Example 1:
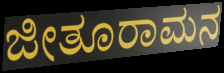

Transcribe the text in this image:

ಜೀತೂರಾಮನ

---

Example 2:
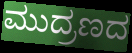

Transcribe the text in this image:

ಮುದ್ರಣದ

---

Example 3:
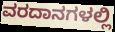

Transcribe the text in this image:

ವರದಾನಗಳಲ್ಲಿ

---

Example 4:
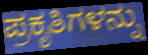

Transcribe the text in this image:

ಪ್ರಕೃತಿಗಳನ್ನು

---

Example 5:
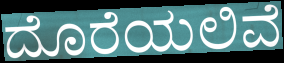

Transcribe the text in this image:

ದೊರೆಯಲಿವೆ